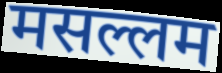
मसल्लम